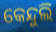
କେନ୍ଦୁଲି